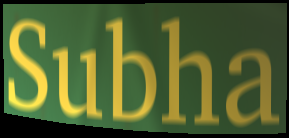
Subha